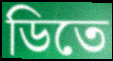
ডিতে